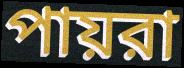
পায়রা